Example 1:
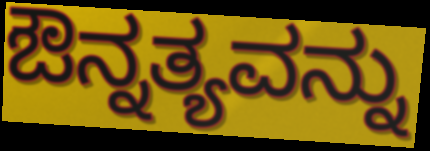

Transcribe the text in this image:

ಔನ್ನತ್ಯವನ್ನು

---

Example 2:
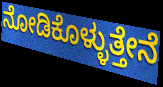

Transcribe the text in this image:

ನೋಡಿಕೊಳ್ಳುತ್ತೇನೆ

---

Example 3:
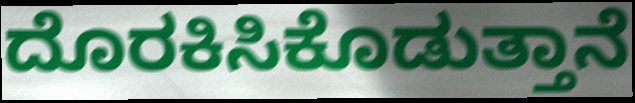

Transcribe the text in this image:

ದೊರಕಿಸಿಕೊಡುತ್ತಾನೆ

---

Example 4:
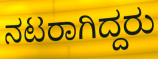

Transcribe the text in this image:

ನಟರಾಗಿದ್ದರು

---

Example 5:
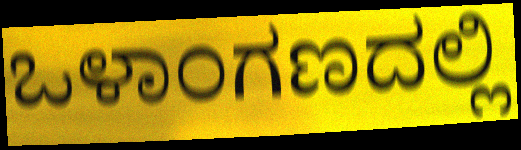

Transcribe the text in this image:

ಒಳಾಂಗಣದಲ್ಲಿ